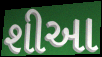
શીઆ